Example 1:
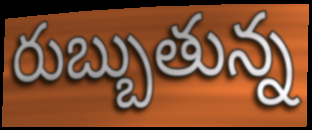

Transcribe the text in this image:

రుబ్బుతున్న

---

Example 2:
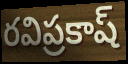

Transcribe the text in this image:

రవిప్రకాష్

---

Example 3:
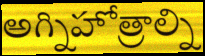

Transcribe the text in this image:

అగ్నిహోత్రాల్ని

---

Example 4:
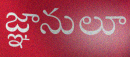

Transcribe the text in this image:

జ్ఞానులూ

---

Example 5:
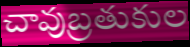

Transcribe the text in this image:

చావుబ్రతుకుల